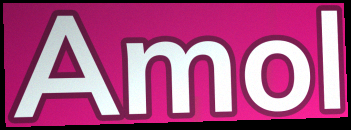
Amol